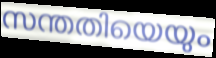
സന്തതിയെയും